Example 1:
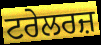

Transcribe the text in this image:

ਟਰੇਲਰਜ਼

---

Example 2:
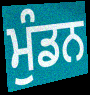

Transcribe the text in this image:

ਮੁੰਡਨ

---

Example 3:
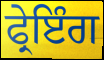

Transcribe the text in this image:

ਫ੍ਰੇਇੰਗ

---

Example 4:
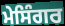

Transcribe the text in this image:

ਮੇਸਿੰਗਰ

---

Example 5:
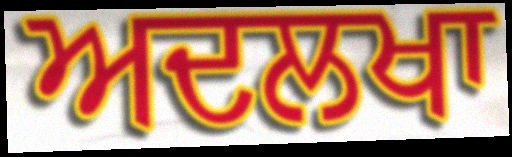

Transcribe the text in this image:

ਅਦਲਖਾ